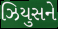
ઝિયુસને